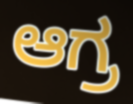
ಆಗ್ರ